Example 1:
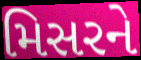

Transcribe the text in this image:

મિસરને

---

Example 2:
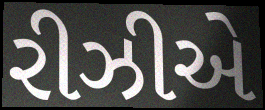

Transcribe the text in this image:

રીઝીએ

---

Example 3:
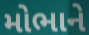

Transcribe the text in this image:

મોભાને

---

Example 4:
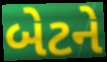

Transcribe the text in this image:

બેટને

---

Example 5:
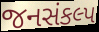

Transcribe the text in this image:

જનસંકલ્પ